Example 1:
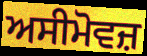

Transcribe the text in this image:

ਅਸੀਮੋਵਜ਼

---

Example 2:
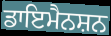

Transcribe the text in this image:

ਡਾਇਮੈਨਸ਼ਨ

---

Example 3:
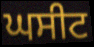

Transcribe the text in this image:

ਘਸੀਟ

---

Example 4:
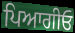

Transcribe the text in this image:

ਪਿਆਗੀਓ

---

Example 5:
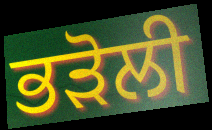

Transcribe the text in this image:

ਭੜੋਲੀ